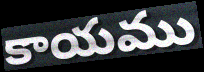
కాయము